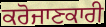
ਕਰੋਜਾਣਕਾਰੀ